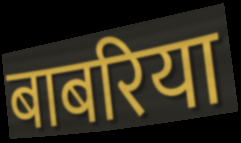
बाबरिया